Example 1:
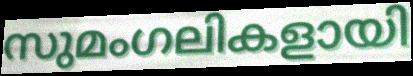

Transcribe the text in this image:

സുമംഗലികളായി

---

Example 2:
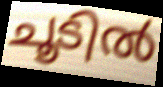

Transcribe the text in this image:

ചൂടിൽ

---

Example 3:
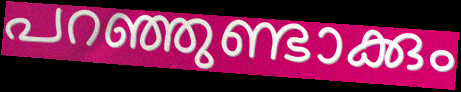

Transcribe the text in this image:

പറഞ്ഞുണ്ടാക്കും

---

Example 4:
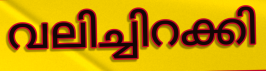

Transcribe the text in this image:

വലിച്ചിറക്കി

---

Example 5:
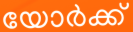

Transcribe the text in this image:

യോർക്ക്